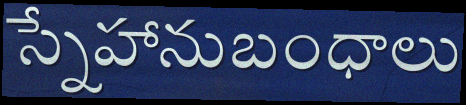
స్నేహానుబంధాలు